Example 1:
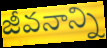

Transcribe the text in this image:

జీవనాన్ని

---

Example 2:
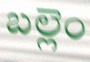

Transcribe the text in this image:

బల్లెం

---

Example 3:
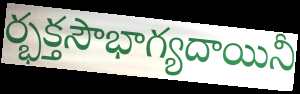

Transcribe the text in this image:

ర్భక్తసౌభాగ్యదాయినీ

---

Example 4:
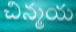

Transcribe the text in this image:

చిన్మయ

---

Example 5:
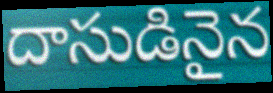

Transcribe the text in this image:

దాసుడినైన